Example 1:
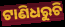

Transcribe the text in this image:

ଟାଣିଧରୁଚି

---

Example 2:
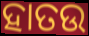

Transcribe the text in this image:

ହାତଉ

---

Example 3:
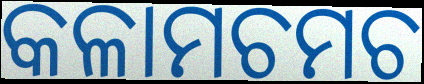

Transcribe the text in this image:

କଳାମଚମଚ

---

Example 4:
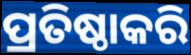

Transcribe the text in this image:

ପ୍ରତିଷ୍ଠାକରି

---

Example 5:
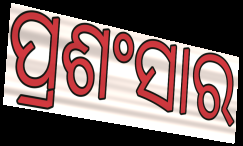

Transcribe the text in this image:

ପ୍ରଶଂସାର